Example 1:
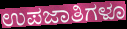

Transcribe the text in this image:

ಉಪಜಾತಿಗಳೂ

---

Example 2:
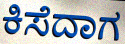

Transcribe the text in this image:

ಕಿಸೆದಾಗ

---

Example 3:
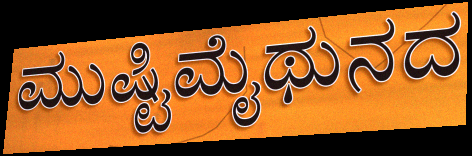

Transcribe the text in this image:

ಮುಷ್ಟಿಮೈಥುನದ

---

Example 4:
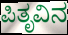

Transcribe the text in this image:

ಪಿತೃವಿನ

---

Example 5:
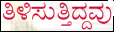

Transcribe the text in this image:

ತಿಳಿಸುತ್ತಿದ್ದವು